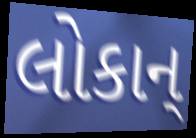
લોકાન્